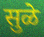
सुळे